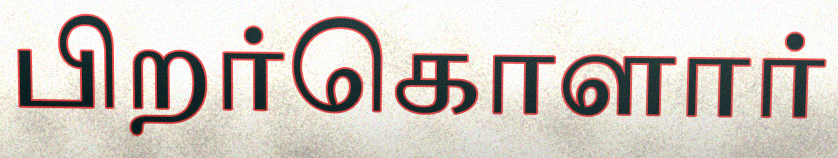
பிறர்கொளார்